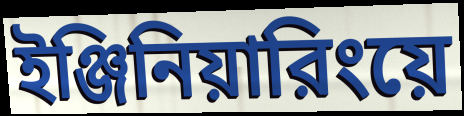
ইঞ্জিনিয়ারিংয়ে